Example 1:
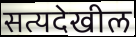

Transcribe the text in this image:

सत्यदेखील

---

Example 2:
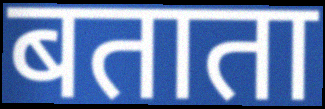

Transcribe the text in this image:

बताता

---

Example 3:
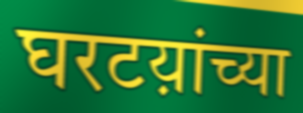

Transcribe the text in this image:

घरटय़ांच्या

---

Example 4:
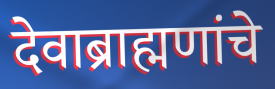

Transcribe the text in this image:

देवाब्राह्मणांचे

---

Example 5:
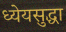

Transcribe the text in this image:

ध्येयसुद्धा